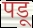
पडू